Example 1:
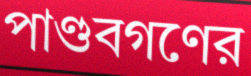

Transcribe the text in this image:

পাণ্ডবগণের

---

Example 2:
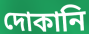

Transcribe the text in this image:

দোকানি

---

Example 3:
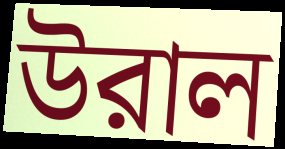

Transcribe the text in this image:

উরাল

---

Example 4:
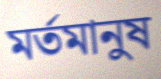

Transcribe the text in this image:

মর্তমানুষ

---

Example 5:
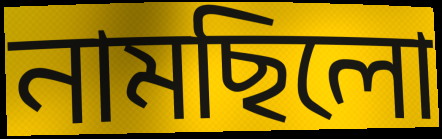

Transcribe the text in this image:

নামছিলো